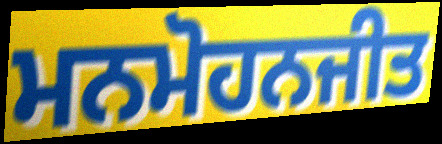
ਮਨਮੋਹਨਜੀਤ